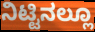
ನಿಟ್ಟಿನಲ್ಲೂ